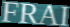
FRAI